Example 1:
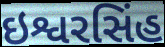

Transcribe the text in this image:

ઇશ્વરસિંહ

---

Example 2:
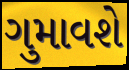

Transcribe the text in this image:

ગુમાવશે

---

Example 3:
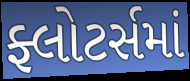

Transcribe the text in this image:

ફ્લોટર્સમાં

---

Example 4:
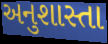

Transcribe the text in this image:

અનુશાસ્તા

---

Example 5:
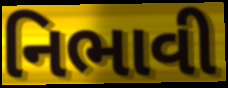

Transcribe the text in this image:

નિભાવી